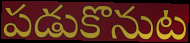
పడుకొనుట